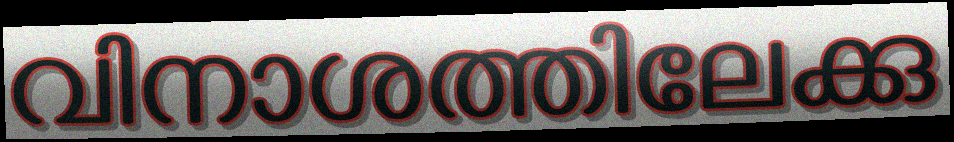
വിനാശത്തിലേക്കു